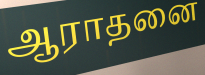
ஆராதனை